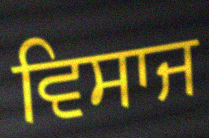
ਵਿਸਾਜ